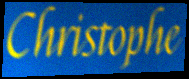
Christophe